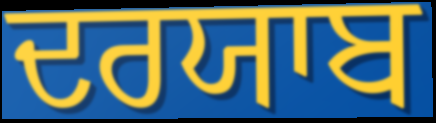
ਦਰਯਾਬ